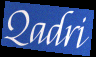
Qadri